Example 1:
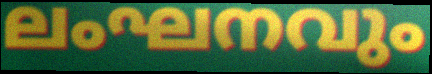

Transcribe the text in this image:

ലംഘനവും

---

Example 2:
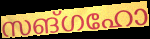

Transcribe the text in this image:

സങ്ഗഹോ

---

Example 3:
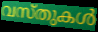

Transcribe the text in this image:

വസ്തുകൾ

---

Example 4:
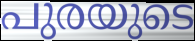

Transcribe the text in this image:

പുരയുടെ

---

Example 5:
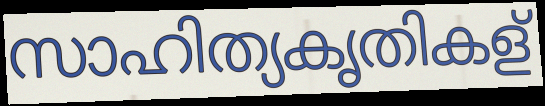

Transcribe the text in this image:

സാഹിത്യകൃതികള്